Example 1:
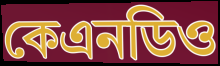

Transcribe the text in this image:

কেএনডিও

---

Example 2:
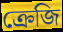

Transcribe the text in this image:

ক্রেজি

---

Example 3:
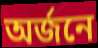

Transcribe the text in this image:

অর্জনে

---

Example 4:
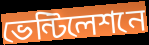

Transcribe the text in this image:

ভেন্টিলেশনে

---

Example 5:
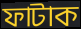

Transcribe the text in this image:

ফাটাক